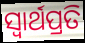
ସ୍ୱାର୍ଥପ୍ରତି